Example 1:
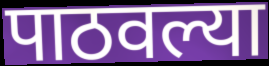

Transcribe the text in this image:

पाठवल्या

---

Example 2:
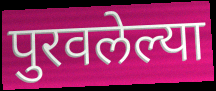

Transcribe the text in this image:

पुरवलेल्या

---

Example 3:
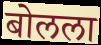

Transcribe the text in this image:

बोलला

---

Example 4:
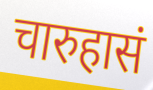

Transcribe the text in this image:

चारुहासं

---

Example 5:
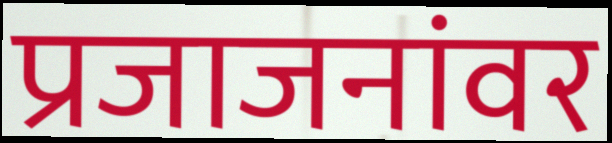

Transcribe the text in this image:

प्रजाजनांवर